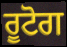
ਰੂਟੋਗ